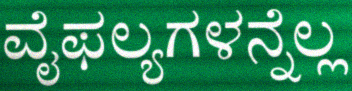
ವೈಫಲ್ಯಗಳನ್ನೆಲ್ಲ